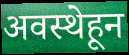
अवस्थेहून